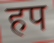
हप